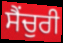
ਸੈਂਚੁਰੀ